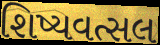
શિષ્યવત્સલ